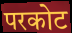
परकोट